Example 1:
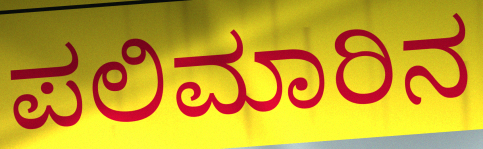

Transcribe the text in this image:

ಪಲಿಮಾರಿನ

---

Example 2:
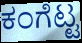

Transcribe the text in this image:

ಕಂಗೆಟ್ಟ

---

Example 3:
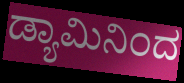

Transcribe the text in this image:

ಡ್ಯಾಮಿನಿಂದ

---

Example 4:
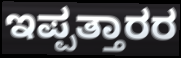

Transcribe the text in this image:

ಇಪ್ಪತ್ತಾರರ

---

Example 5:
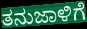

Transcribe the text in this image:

ತನುಜಾಳಿಗೆ